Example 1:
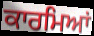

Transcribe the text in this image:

ਕਾਰਮਿਆਂ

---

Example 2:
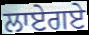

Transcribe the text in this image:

ਲਾਏਗਏ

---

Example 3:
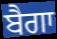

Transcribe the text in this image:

ਬੈਗਾ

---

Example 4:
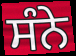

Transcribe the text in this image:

ਸੰਨੇ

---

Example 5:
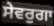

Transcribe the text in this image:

ਸੇਵਰੁਗਾ